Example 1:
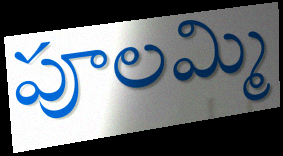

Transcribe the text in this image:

పూలమ్మి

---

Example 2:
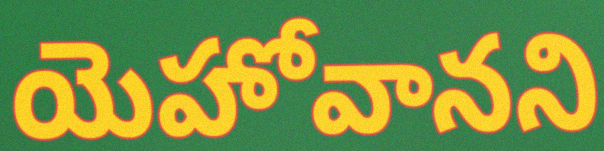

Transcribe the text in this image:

యెహోవానని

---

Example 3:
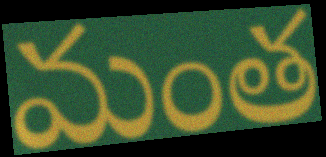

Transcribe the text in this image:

మంత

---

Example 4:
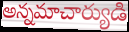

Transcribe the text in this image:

అన్నమాచార్యుడి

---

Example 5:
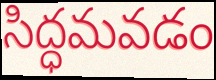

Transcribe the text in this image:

సిద్ధమవడం